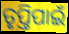
ତୃପ୍ତିପାଇଁ